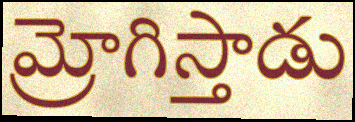
మ్రోగిస్తాడు